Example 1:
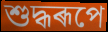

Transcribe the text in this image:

শুদ্ধৰূপে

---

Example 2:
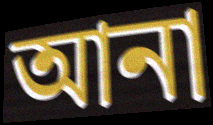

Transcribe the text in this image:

আনা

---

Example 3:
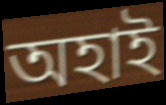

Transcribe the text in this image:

অহাই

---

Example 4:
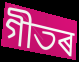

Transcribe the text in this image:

গীতৰ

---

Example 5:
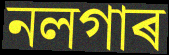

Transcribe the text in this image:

নলগাৰ